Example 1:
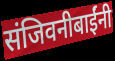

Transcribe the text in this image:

संजिवनीबाईंनी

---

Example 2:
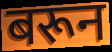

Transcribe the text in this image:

बरून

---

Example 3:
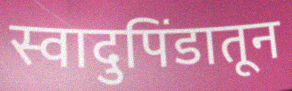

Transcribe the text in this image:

स्वादुपिंडातून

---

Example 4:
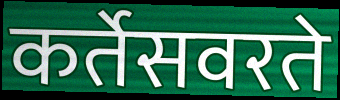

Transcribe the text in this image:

कर्तेसवरते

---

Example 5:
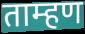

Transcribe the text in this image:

ताम्हण